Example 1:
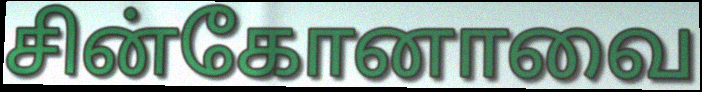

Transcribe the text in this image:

சின்கோனாவை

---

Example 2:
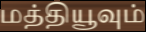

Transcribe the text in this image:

மத்தியூவும்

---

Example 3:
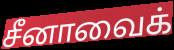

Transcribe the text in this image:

சீனாவைக்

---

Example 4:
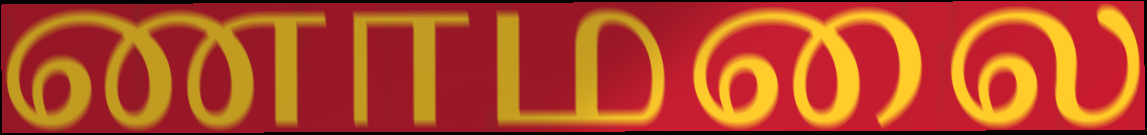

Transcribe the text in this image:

ணாமலை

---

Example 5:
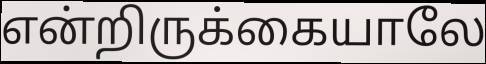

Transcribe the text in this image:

என்றிருக்கையாலே